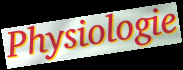
Physiologie